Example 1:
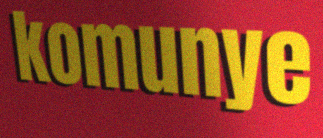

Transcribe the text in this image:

komunye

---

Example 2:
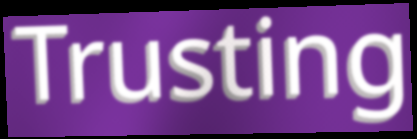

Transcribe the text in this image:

Trusting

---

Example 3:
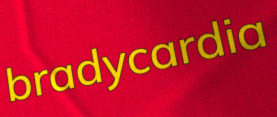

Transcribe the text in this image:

bradycardia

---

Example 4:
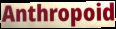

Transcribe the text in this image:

Anthropoid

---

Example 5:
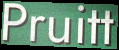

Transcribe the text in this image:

Pruitt